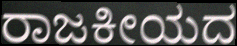
ರಾಜಕೀಯದ